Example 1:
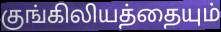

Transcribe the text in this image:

குங்கிலியத்தையும்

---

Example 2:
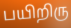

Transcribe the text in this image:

பயிறிரு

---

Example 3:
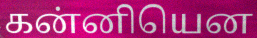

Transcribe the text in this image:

கன்னியென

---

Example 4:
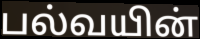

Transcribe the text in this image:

பல்வயின்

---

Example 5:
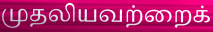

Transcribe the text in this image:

முதலியவற்றைக்